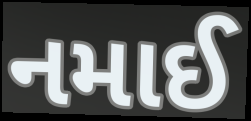
નમાઈ